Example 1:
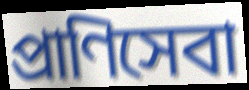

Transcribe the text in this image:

প্রাণিসেবা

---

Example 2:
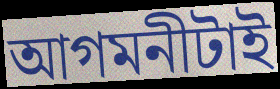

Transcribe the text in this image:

আগমনীটাই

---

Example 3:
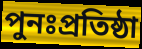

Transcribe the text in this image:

পুনঃপ্রতিষ্ঠা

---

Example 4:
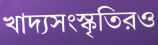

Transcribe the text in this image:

খাদ্যসংস্কৃতিরও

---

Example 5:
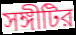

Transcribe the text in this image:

সঙ্গীটির